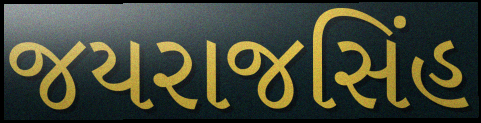
જયરાજસિંહ